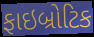
ફાઇબ્રોટિક